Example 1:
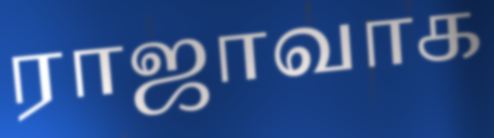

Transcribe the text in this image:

ராஜாவாக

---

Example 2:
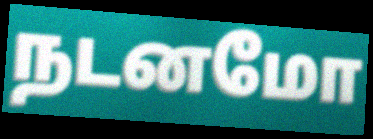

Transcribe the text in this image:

நடனமோ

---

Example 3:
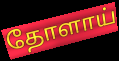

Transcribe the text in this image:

தோளாய்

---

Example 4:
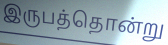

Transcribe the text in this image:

இருபத்தொன்று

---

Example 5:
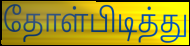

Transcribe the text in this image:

தோள்பிடித்து